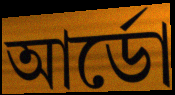
আর্ডো